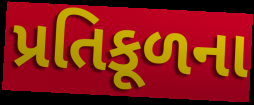
પ્રતિકૂળના